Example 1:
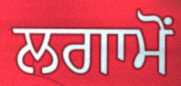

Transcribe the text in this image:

ਲਗਾਮੋਂ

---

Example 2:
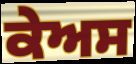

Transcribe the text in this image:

ਕੇਅਸ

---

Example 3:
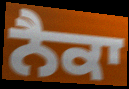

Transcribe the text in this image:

ਨੈਕਾ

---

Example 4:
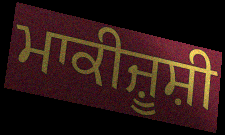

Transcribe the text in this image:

ਮਾਕੀਜ਼ੂਸ਼ੀ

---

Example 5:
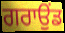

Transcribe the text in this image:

ਗਰਾਉਂਡ